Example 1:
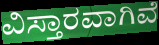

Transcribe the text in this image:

ವಿಸ್ತಾರವಾಗಿವೆ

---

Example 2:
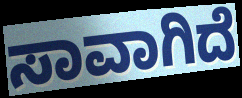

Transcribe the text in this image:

ಸಾವಾಗಿದೆ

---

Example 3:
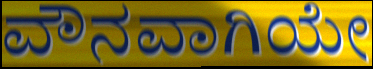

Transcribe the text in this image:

ವೌನವಾಗಿಯೇ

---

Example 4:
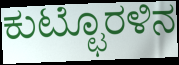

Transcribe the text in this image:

ಕುಟ್ಟೊರಳಿನ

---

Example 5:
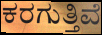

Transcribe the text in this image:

ಕರಗುತ್ತಿವೆ